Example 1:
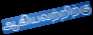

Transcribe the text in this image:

ஆகியவற்றிற்கு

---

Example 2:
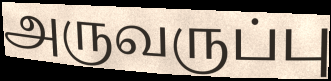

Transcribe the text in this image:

அருவருப்பு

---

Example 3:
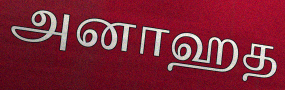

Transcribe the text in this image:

அனாஹத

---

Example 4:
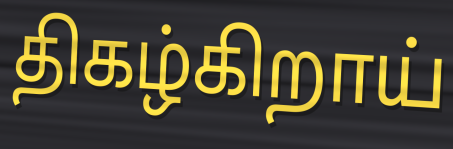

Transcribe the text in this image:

திகழ்கிறாய்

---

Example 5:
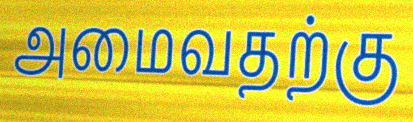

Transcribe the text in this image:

அமைவதற்கு